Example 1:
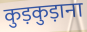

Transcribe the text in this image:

कुड़कुड़ाना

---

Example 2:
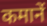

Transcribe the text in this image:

कमानें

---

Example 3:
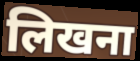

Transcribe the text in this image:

लिखना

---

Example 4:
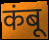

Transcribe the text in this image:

कंबू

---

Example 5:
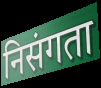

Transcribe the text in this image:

निसंगता